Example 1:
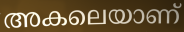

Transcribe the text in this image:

അകലെയാണ്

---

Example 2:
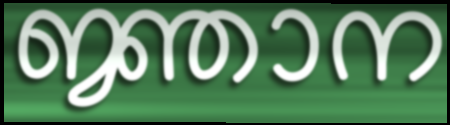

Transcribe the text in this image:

ജ്ഞാന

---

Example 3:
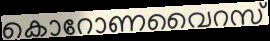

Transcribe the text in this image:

കൊറോണവൈറസ്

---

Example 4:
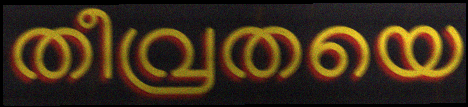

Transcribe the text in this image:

തീവ്രതയെ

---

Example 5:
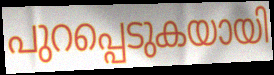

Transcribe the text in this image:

പുറപ്പെടുകയായി